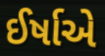
ઈર્ષાએ